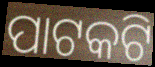
ପାଟକଟି